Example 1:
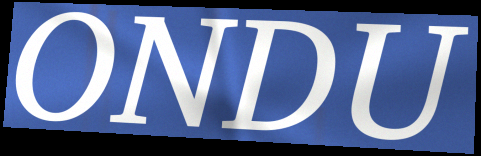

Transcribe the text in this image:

ONDU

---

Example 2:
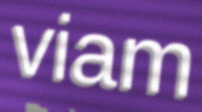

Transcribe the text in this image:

viam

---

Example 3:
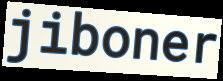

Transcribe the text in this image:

jiboner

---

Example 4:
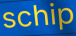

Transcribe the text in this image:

schip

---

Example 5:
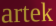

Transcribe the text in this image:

artek